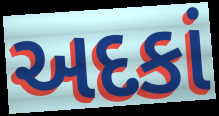
અદકાં